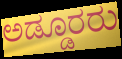
ಅಡ್ಡೂರರು